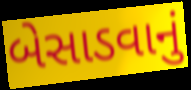
બેસાડવાનું